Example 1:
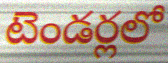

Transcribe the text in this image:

టెండర్లలో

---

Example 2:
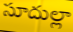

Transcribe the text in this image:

సూదుల్లా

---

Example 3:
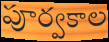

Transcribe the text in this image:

పూర్వకాల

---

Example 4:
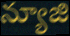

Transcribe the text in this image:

న్యూజి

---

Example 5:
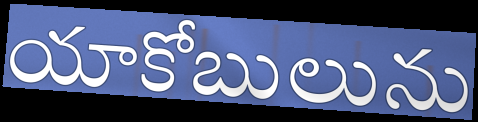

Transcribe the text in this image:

యాకోబులును